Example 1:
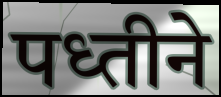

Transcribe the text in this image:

पध्तीने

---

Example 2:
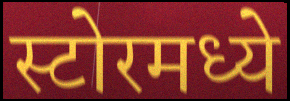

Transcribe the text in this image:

स्टोरमध्ये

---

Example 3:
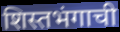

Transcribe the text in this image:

शिस्तभंगाची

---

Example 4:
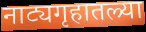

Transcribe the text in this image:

नाट्यगृहातल्या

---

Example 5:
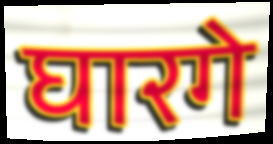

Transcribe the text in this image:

घारगे